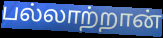
பல்லாற்றான்